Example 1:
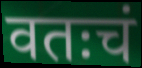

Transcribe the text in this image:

वतःचं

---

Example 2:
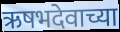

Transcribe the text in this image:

ऋषभदेवाच्या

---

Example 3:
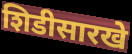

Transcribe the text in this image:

शिडीसारखे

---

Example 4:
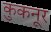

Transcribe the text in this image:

कुकनूर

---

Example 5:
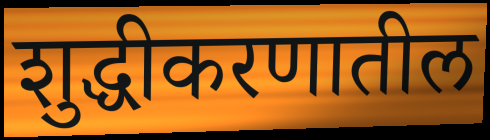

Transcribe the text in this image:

शुद्धीकरणातील